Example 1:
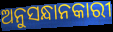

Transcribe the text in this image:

ଅନୁସନ୍ଧାନକାରୀ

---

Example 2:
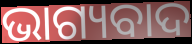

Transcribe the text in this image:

ଭାଗ୍ୟବାଦ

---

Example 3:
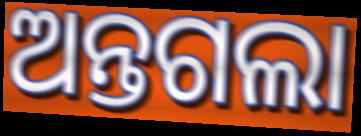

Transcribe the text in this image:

ଅନ୍ତଗଲା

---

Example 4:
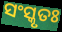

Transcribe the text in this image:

ସଂସ୍କୃତଃ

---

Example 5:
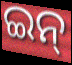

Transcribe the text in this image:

ଇନ୍